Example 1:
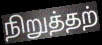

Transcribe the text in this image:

நிறுத்தற்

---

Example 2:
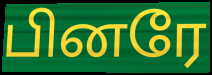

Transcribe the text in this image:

பினரே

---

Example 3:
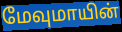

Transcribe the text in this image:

மேவுமாயின்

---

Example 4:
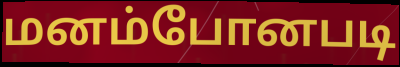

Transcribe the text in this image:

மனம்போனபடி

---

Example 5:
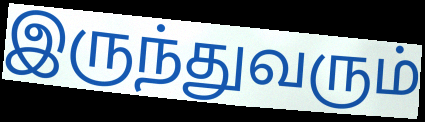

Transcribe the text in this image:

இருந்துவரும்